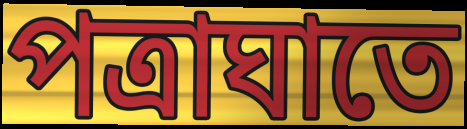
পত্রাঘাতে